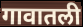
गावातली